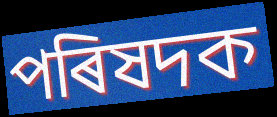
পৰিষদক